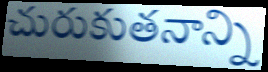
చురుకుతనాన్ని